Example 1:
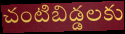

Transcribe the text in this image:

చంటిబిడ్డలకు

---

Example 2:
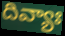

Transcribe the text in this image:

దివ్యాః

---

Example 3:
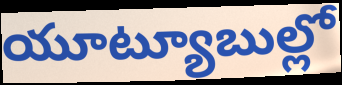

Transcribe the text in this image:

యూట్యూబుల్లో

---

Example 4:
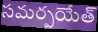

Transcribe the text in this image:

సమర్పయేత్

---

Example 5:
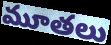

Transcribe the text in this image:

మూతలు